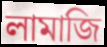
লামাজি